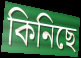
কিনিছে